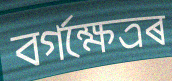
বৰ্গক্ষেত্ৰৰ